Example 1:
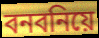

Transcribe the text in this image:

বনবনিয়ে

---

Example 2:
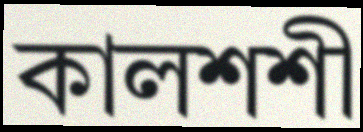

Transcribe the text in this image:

কালশশী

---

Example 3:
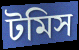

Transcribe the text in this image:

টমিস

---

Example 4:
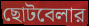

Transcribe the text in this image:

ছোটবেলার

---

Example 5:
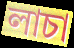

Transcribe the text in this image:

লাচা